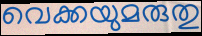
വെക്കയുമരുതു